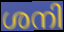
ശനി